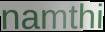
namthi